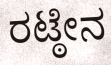
ರಟ್ಠೇನ